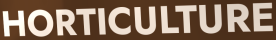
HORTICULTURE